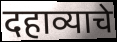
दहाव्याचे